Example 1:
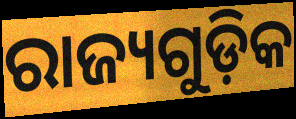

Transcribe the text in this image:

ରାଜ୍ୟଗୁଡ଼ିକ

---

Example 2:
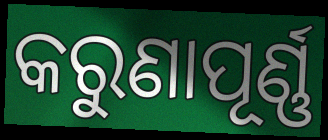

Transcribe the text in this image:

କରୁଣାପୂର୍ଣ୍ଣ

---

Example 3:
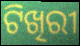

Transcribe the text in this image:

ଟିଖିରୀ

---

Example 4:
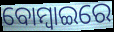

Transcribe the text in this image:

ବୋମ୍ୱାଇରେ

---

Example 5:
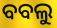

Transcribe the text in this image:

ବବଲୁ